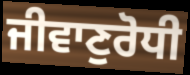
ਜੀਵਾਣੁਰੋਧੀ